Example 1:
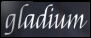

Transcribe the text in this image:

gladium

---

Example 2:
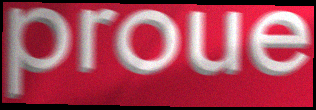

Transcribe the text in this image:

proue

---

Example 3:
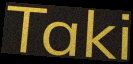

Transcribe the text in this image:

Taki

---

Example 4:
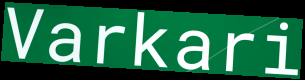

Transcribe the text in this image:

Varkari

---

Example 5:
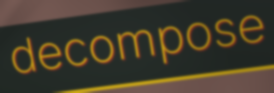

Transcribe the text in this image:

decompose